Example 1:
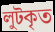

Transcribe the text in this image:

লুটকৃত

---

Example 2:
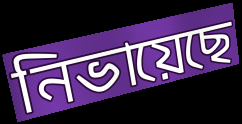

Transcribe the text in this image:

নিভায়েছে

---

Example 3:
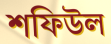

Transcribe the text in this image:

শফিউল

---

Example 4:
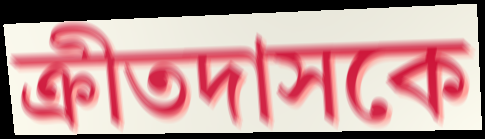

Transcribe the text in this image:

ক্রীতদাসকে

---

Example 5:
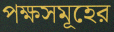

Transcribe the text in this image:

পক্ষসমূহের